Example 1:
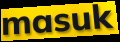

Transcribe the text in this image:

masuk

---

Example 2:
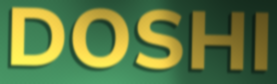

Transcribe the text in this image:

DOSHI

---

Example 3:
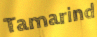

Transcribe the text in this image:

Tamarind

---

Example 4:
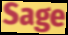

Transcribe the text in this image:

Sage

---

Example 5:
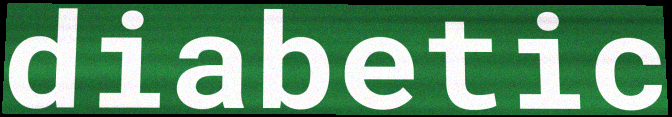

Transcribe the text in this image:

diabetic